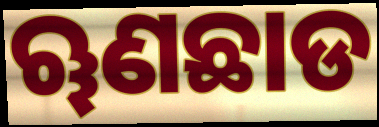
ୠଣଛାଡ